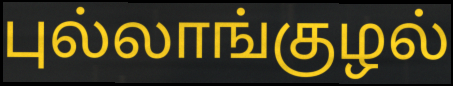
புல்லாங்குழல்